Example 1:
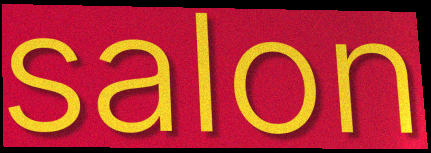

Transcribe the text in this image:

salon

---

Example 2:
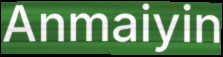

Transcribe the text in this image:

Anmaiyin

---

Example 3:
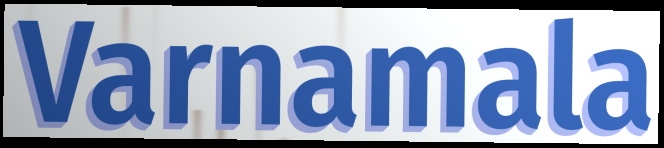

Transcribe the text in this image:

Varnamala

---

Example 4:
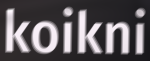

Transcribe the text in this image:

koikni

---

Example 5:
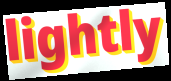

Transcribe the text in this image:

lightly